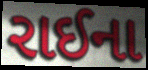
રાઈના